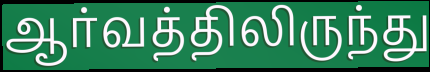
ஆர்வத்திலிருந்து